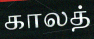
காலத்